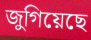
জুগিয়েছে